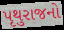
પૃથુરાજનો